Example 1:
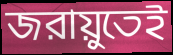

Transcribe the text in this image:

জরায়ুতেই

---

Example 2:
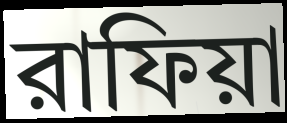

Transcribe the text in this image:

রাফিয়া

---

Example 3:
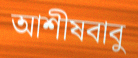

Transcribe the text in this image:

আশীষবাবু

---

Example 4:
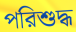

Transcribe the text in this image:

পরিশুদ্ধ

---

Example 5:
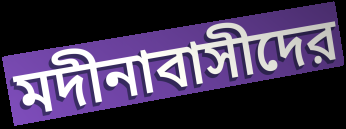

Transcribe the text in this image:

মদীনাবাসীদের